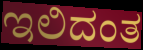
ಇಲಿದಂತ